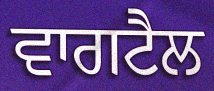
ਵਾਗਟੈਲ